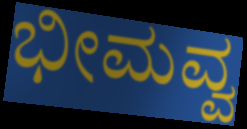
ಭೀಮವ್ವ